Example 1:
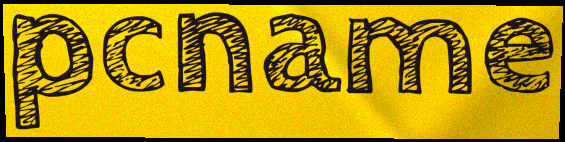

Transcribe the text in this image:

pcname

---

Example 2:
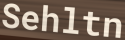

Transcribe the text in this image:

Sehltn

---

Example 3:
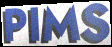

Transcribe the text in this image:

PIMS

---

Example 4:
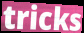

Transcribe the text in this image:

tricks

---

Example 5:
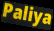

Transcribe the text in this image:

Paliya